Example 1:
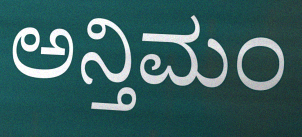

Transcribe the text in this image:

ಅನ್ತಿಮಂ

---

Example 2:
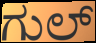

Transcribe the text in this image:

ಗುಲ್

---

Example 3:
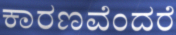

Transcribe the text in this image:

ಕಾರಣವೆಂದರೆ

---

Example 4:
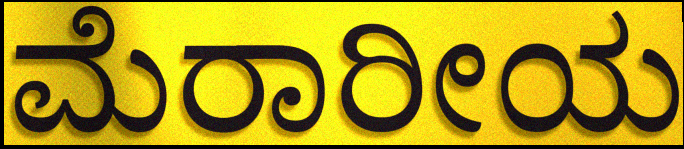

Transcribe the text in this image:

ಮೆರಾರೀಯ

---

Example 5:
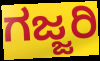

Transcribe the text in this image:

ಗಜ್ಜರಿ